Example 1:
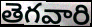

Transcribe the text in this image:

తెగవారి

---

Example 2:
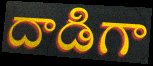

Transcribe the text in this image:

దాడిగా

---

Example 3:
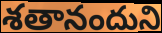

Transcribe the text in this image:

శతానందుని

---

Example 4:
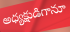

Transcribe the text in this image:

అధ్యక్షుడిగానూ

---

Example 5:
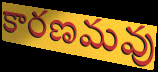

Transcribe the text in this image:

కారణమవు